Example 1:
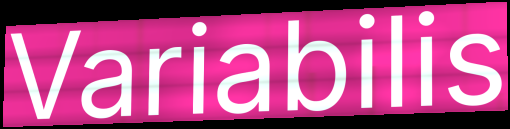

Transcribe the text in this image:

Variabilis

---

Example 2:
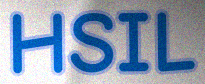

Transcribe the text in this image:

HSIL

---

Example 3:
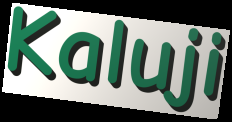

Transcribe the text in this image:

Kaluji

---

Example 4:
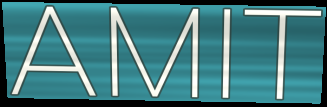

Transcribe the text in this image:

AMIT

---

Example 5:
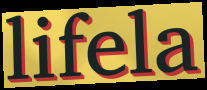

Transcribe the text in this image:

lifela